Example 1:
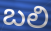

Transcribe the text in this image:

బలి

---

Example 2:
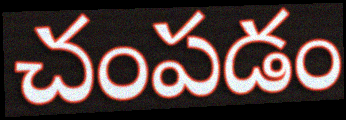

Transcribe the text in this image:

చంపడం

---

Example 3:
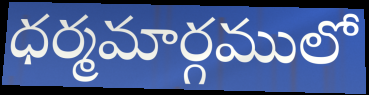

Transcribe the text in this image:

ధర్మమార్గములో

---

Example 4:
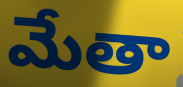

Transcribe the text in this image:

మేతా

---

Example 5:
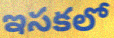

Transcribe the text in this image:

ఇసకలో